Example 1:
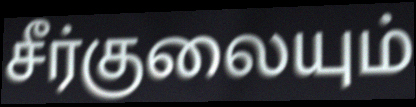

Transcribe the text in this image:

சீர்குலையும்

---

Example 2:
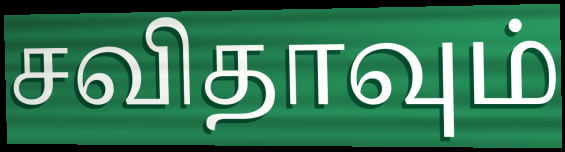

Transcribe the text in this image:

சவிதாவும்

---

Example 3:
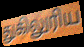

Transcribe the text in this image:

துகிலுரிய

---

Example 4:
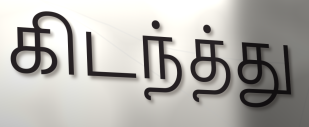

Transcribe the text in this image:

கிடந்த்து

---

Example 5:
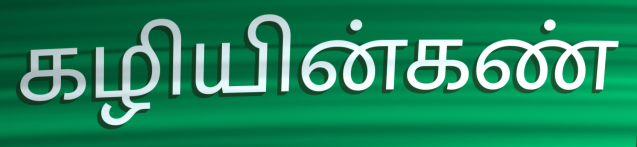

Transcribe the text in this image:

கழியின்கண்